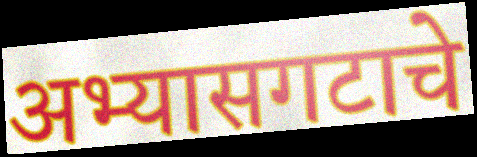
अभ्यासगटाचे